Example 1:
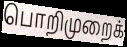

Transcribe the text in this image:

பொறிமுறைக்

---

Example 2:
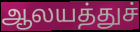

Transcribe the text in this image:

ஆலயத்துச்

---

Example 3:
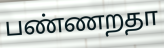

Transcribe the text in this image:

பண்ணறதா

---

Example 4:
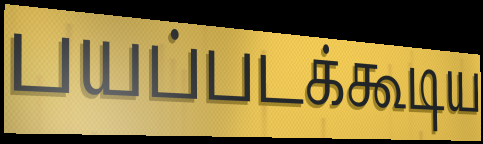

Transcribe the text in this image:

பயப்படக்கூடிய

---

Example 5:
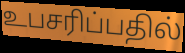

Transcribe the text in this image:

உபசரிப்பதில்